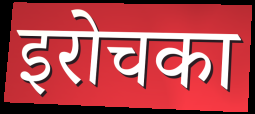
इरोचका